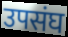
उपसंघ